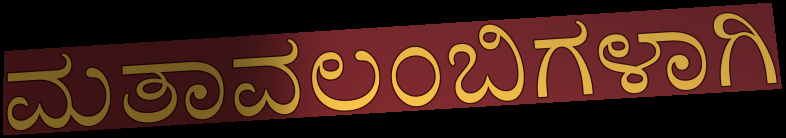
ಮತಾವಲಂಬಿಗಳಾಗಿ